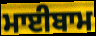
ਮਾਈਬਾਮ